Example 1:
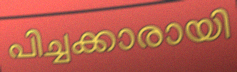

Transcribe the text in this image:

പിച്ചക്കാരായി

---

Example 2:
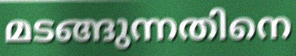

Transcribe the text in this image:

മടങ്ങുന്നതിനെ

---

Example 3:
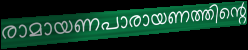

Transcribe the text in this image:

രാമായണപാരായണത്തിന്റെ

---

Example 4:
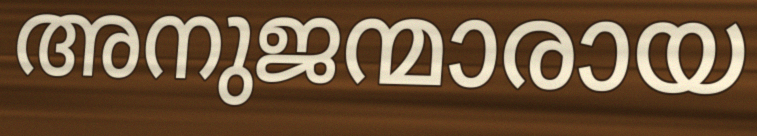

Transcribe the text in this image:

അനുജന്മാരായ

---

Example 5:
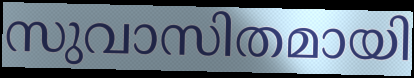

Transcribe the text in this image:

സുവാസിതമായി